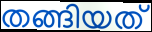
തങ്ങിയത്